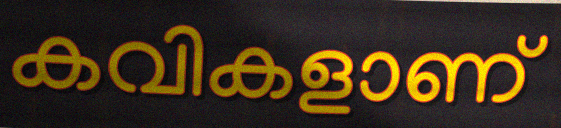
കവികളാണ്